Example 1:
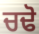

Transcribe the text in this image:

ਚਢੋ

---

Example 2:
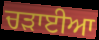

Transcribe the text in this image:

ਚੜਾਈਆ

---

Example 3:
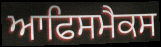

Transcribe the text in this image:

ਆਫਿਸਮੈਕਸ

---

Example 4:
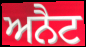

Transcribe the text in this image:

ਅਨੈਟ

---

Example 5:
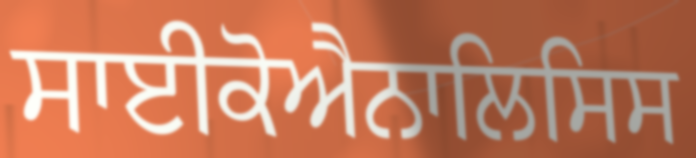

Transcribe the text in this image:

ਸਾਈਕੋਐਨਾਲਿਸਿਸ